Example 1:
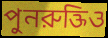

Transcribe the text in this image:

পুনরুক্তিও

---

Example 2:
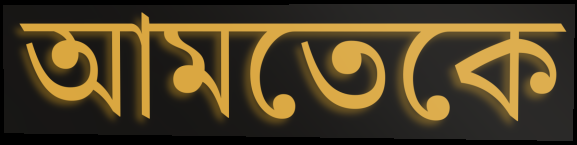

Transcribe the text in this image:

আমতেকে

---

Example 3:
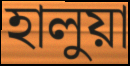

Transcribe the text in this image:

হালুয়া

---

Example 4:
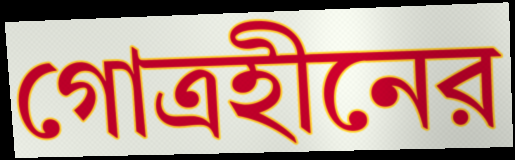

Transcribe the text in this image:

গোত্রহীনের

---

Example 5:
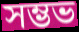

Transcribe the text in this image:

সম্ভভ